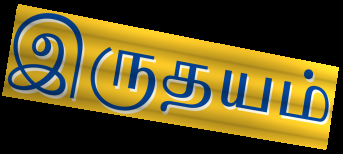
இருதயம்